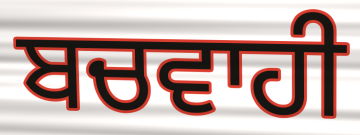
ਬਚਵਾਹੀ